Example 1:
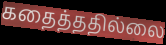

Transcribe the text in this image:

கதைத்ததில்லை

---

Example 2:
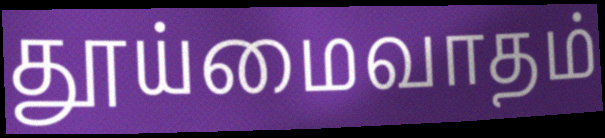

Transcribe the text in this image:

தூய்மைவாதம்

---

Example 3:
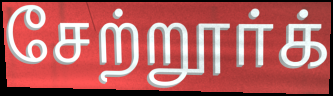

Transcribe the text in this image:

சேற்றூர்க்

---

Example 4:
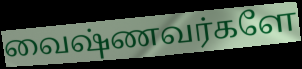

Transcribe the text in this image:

வைஷ்ணவர்களே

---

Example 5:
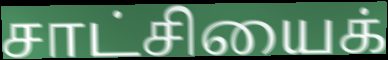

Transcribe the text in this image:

சாட்சியைக்